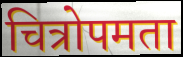
चित्रोपमता